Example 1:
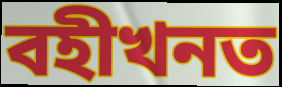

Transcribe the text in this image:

বহীখনত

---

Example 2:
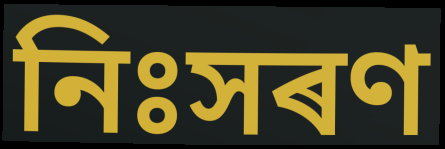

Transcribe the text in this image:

নিঃসৰণ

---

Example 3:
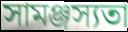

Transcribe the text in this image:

সামঞ্জস্যতা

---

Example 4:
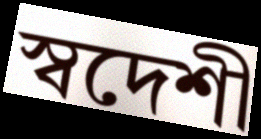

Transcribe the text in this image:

স্বদেশী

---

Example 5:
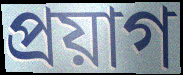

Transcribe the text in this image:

প্ৰয়াগ